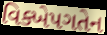
વિક્ખેપગતેન